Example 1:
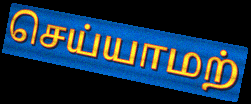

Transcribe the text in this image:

செய்யாமற்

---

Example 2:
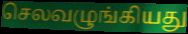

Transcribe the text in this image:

செலவழுங்கியது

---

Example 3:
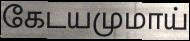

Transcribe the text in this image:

கேடயமுமாய்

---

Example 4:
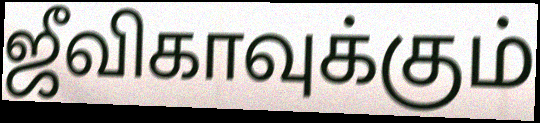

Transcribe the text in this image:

ஜீவிகாவுக்கும்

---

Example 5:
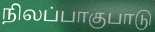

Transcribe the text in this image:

நிலப்பாகுபாடு